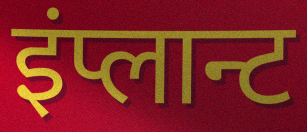
इंप्लान्ट